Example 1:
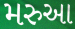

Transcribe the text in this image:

મરુઆ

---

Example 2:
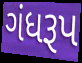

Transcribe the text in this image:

ગંધરૂપ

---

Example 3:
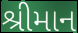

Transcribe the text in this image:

શ્રીમાન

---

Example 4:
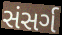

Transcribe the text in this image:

સંસર્ગ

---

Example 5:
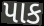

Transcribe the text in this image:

પાક